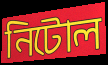
নিটোল